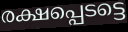
രക്ഷപ്പെടട്ടെ